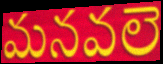
మనవలె